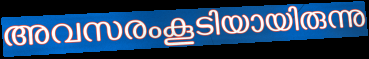
അവസരംകൂടിയായിരുന്നു